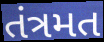
તંત્રમત